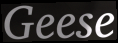
Geese